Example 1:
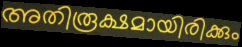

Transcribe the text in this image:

അതിരൂക്ഷമായിരിക്കും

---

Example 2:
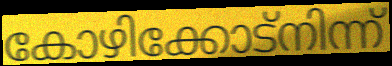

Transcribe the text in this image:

കോഴിക്കോട്നിന്ന്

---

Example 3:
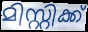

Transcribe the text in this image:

മിസ്റ്റിക്ക്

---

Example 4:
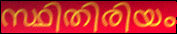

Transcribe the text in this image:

സ്ഥിതിരിയം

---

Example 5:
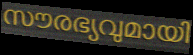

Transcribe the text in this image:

സൗരഭ്യവുമായി